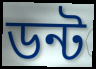
ডন্ট